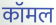
कॉमल